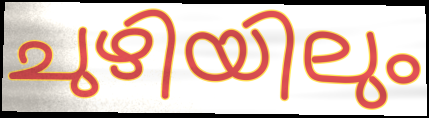
ചുഴിയിലും